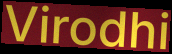
Virodhi